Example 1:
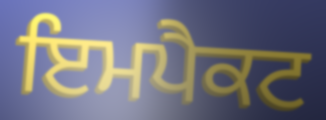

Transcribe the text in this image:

ਇਮਪੈਕਟ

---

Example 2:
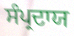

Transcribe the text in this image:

ਸੰਪ੍ਰਦਾਯ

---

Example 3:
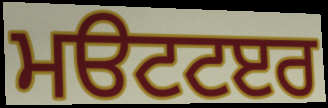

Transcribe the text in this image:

ਮੳਟਟੲਰ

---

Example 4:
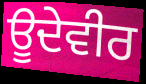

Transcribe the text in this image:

ਊਦੇਵੀਰ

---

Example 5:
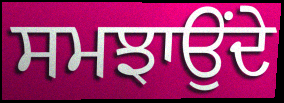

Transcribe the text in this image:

ਸਮਝਾਉੰਦੇ